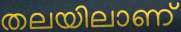
തലയിലാണ്